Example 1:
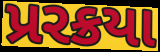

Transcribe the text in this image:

પ્રરક્રયા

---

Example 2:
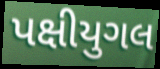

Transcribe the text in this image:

પક્ષીયુગલ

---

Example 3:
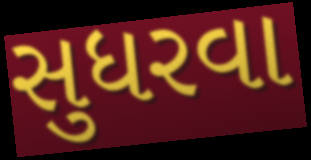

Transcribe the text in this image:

સુધરવા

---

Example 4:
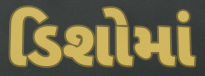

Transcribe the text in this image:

ડિશોમાં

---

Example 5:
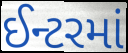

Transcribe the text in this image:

ઈન્ટરમાં